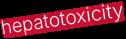
hepatotoxicity